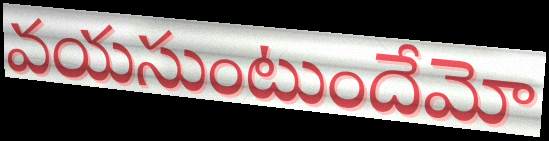
వయసుంటుందేమో